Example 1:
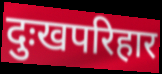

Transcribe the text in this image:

दुःखपरिहार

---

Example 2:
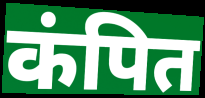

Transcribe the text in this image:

कंपित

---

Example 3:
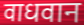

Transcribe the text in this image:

वाधवान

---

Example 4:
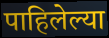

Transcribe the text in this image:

पाहिलेल्या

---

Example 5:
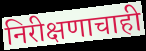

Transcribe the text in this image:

निरीक्षणाचाही